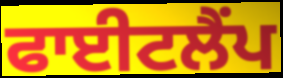
ਫਾਈਟਲੈਂਪ